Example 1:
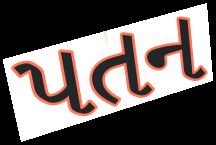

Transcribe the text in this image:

પતન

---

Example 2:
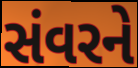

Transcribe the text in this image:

સંવરને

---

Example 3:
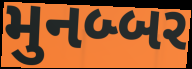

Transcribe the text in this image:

મુનબ્બર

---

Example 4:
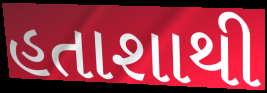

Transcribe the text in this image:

હતાશાથી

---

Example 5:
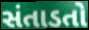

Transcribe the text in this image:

સંતાડતો